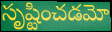
సృష్టించడమో